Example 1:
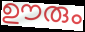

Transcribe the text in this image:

ഊരും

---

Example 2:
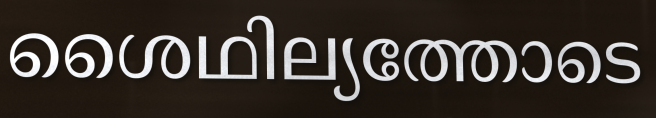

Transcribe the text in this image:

ശൈഥില്യത്തോടെ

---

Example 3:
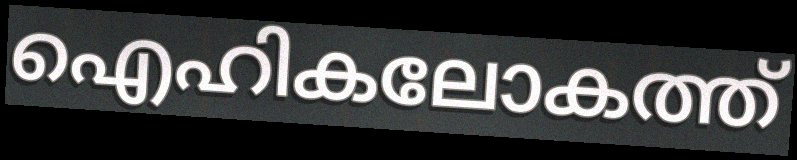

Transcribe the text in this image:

ഐഹികലോകത്ത്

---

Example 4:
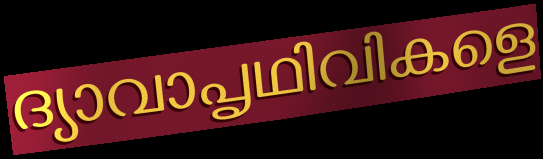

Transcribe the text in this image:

ദ്യാവാപൃഥിവികളെ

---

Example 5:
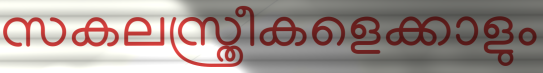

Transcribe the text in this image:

സകലസ്ത്രീകളെക്കാളും